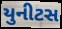
યુનીટસ